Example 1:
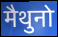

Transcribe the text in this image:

मैथुनो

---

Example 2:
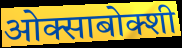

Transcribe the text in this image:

ओक्साबोक्शी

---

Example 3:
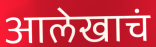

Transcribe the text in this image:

आलेखाचं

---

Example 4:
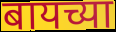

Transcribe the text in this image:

बायच्या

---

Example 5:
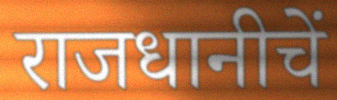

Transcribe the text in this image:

राजधानीचें